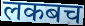
लकबच